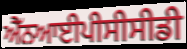
ਐੱਨਆਈਪੀਸੀਸੀਡੀ